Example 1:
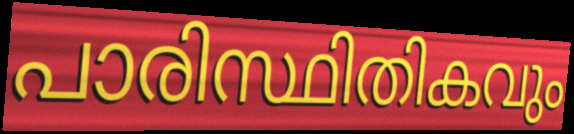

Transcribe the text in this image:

പാരിസ്ഥിതികവും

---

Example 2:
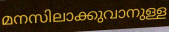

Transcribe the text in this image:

മനസിലാക്കുവാനുള്ള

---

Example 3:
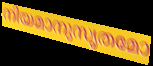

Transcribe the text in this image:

നിയമാനുസൃതമോ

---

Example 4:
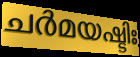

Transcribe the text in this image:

ചർമയഷ്ടിഃ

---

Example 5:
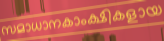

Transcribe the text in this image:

സമാധാനകാംക്ഷികളായ